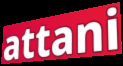
attani